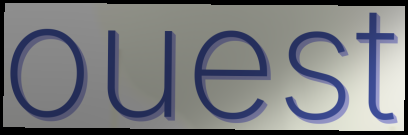
ouest